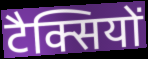
टैक्सियों